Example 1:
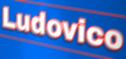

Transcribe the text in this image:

Ludovico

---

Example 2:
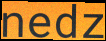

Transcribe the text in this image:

nedz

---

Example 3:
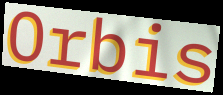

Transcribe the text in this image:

Orbis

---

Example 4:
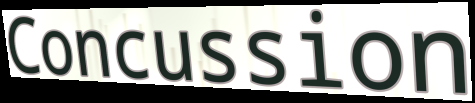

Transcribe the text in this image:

Concussion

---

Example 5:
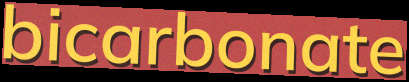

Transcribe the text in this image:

bicarbonate